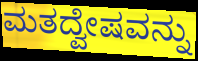
ಮತದ್ವೇಷವನ್ನು